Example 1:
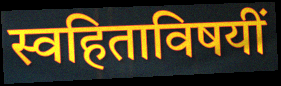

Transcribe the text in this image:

स्वहिताविषयीं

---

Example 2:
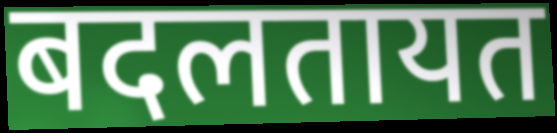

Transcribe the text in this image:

बदलतायत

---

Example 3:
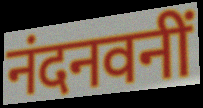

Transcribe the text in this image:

नंदनवनीं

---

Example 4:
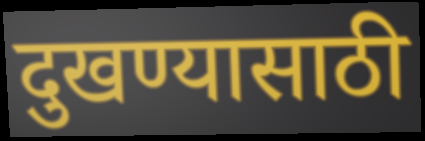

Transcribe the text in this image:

दुखण्यासाठी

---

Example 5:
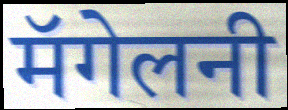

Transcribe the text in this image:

मॅगेलनी